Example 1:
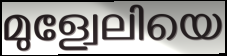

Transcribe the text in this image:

മുള്വേലിയെ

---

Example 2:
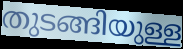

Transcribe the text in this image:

തുടങ്ങിയുള്ള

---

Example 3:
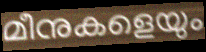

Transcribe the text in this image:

മീനുകളെയും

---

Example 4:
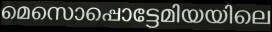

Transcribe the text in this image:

മെസൊപ്പൊട്ടേമിയയിലെ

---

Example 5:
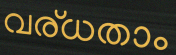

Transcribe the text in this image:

വര്ധതാം